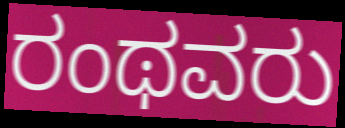
ರಂಥವರು